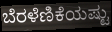
ಬೆರಳೆಣಿಕೆಯಷ್ಟು